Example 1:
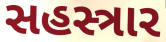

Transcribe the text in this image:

સહસ્ત્રાર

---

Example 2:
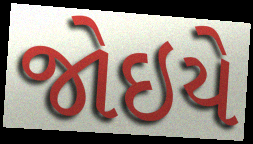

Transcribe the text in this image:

જોઇયે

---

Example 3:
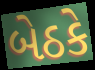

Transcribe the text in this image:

બેઠકે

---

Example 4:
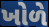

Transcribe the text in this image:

ખોળે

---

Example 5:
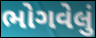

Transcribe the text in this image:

ભોગવેલું